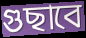
গুছাবে